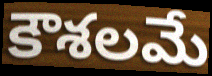
కౌశలమే